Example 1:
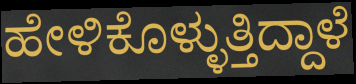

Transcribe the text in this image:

ಹೇಳಿಕೊಳ್ಳುತ್ತಿದ್ದಾಳೆ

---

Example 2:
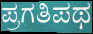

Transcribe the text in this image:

ಪ್ರಗತಿಪಥ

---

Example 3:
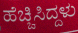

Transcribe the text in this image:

ಹೆಚ್ಚಿಸಿದ್ದಳು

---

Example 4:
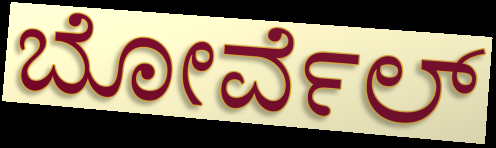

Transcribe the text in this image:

ಬೋರ್ವೆಲ್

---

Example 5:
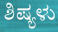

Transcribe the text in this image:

ಶಿಷ್ಯಳು